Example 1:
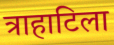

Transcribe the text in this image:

त्राहाटिला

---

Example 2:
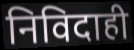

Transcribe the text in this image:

निविदाही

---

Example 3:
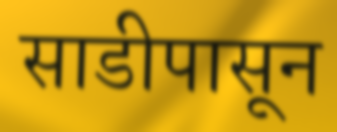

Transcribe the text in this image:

साडीपासून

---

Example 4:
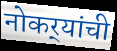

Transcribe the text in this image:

नोकर्यांची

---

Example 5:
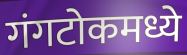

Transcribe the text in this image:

गंगटोकमध्ये